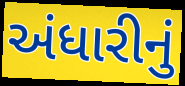
અંધારીનું